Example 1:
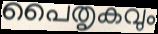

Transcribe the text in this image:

പൈതൃകവും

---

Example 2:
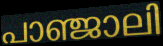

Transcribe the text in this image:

പാഞ്ജാലി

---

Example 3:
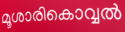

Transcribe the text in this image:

മൂശാരികൊവ്വൽ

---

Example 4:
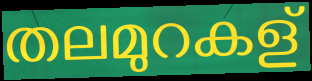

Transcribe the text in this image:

തലമുറകള്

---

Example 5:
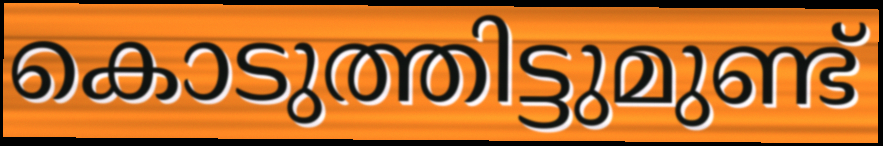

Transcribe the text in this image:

കൊടുത്തിട്ടുമുണ്ട്